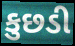
કુછડી